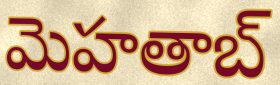
మెహతాబ్